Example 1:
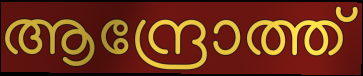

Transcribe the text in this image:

ആന്ദ്രോത്ത്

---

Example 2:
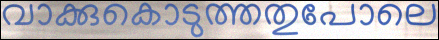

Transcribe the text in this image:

വാക്കുകൊടുത്തതുപോലെ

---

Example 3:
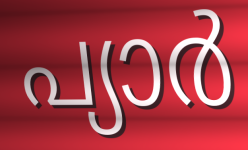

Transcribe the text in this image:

പ്യാർ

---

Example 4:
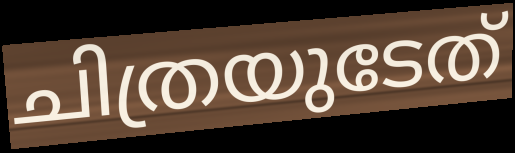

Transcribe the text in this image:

ചിത്രയുടേത്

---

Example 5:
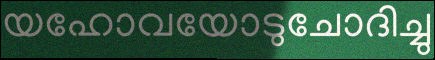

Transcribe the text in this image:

യഹോവയോടുചോദിച്ചു